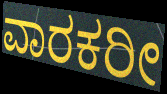
ವಾರಕರೀ